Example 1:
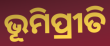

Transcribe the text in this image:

ଭୂମିପ୍ରୀତି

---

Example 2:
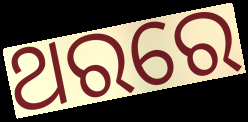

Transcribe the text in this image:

ଥରରେ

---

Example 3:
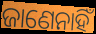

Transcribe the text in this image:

ଜାଣେନାହିଁ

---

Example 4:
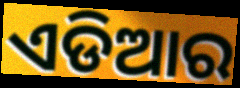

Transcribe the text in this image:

ଏଡିଆର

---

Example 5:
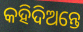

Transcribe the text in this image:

କହିଦିଅନ୍ତେ